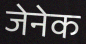
जेनेक